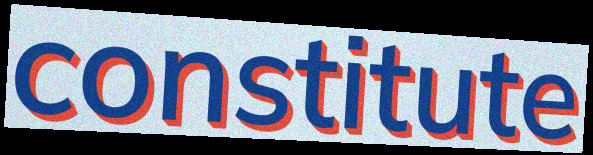
constitute